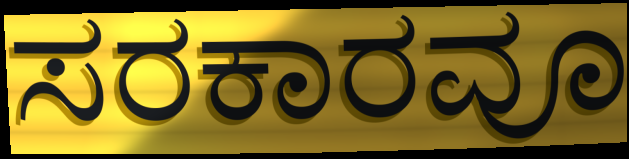
ಸರಕಾರವೂ